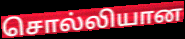
சொல்லியான